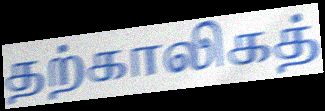
தற்காலிகத்